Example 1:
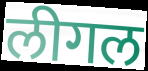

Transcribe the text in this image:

लीगल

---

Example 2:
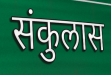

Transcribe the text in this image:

संकुलास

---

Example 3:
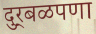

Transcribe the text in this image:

दुर्बळपणा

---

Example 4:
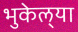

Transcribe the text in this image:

भुकेल्या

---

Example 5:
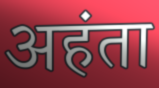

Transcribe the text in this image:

अहंता